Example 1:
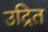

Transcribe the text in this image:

उद्रित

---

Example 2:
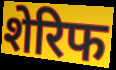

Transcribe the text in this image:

शेरिफ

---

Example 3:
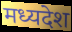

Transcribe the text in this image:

मध्यदेश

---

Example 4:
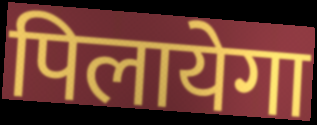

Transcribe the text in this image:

पिलायेगा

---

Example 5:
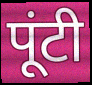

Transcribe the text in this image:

पूंटी